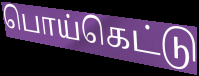
பொய்கெட்டு